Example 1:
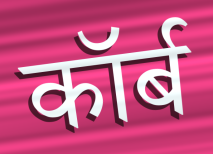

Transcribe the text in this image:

कॉर्ब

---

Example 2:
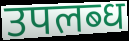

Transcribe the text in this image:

उपलब्‍ध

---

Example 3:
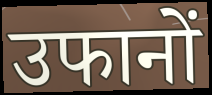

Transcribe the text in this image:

उफानों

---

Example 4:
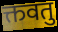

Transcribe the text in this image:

क्तवतु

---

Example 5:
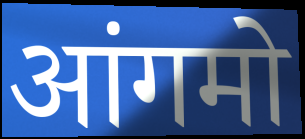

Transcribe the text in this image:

आंगमो